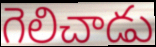
గెలిచాడు